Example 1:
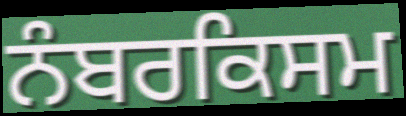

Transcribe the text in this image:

ਨੰਬਰਕਿਸਮ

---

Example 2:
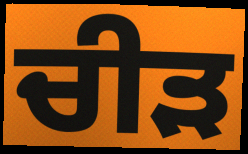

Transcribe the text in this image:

ਚੀੜ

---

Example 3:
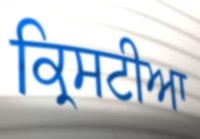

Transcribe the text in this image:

ਕ੍ਰਿਸਟੀਆ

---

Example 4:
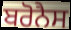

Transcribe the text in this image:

ਬਰੋਨੈਸ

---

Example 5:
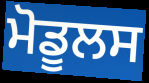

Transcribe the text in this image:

ਮੋਡੂਲਸ